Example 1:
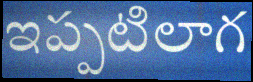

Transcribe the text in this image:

ఇప్పటిలాగ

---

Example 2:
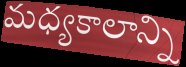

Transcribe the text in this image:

మధ్యకాలాన్ని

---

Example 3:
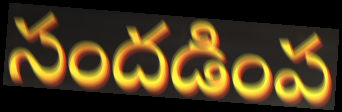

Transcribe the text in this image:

సందడింప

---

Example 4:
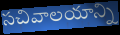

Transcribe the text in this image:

సచివాలయాన్ని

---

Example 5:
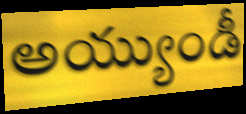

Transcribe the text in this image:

అయ్యుండీ